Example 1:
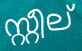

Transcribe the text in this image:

സ്റ്റീല്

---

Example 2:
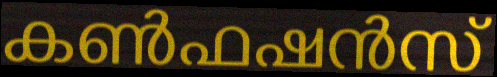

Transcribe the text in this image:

കൺഫഷൻസ്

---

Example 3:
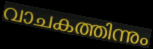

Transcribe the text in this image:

വാചകത്തിന്നും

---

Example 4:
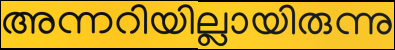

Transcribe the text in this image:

അന്നറിയില്ലായിരുന്നു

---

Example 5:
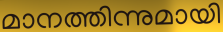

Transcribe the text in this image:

മാനത്തിന്നുമായി